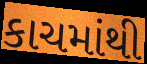
કાચમાંથી